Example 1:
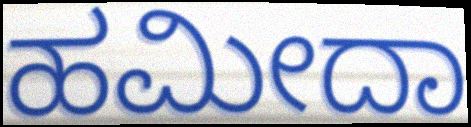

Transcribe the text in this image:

ಹಮೀದಾ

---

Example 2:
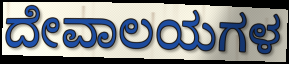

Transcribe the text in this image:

ದೇವಾಲಯಗಳ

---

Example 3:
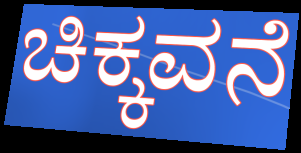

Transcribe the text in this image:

ಚಿಕ್ಕವನೆ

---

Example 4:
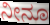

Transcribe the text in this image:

ನೀನೂ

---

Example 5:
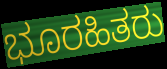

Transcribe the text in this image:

ಭೂರಹಿತರು